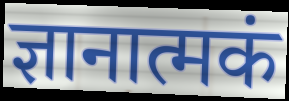
ज्ञानात्मकं